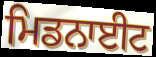
ਮਿਡਨਾਈਟ